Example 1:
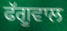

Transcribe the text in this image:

ਫੱਗੂਵਾਲ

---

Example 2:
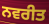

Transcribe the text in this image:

ਨਵਰੀਤ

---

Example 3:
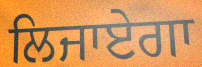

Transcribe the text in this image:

ਲਿਜਾਏਗਾ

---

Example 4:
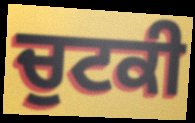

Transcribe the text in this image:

ਚੁਟਕੀ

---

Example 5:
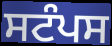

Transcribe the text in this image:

ਸਟੰਪਸ